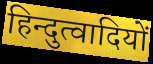
हिन्दुत्वादियों